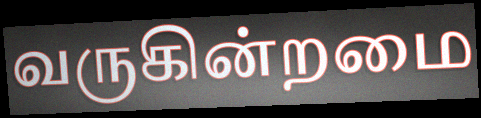
வருகின்றமை